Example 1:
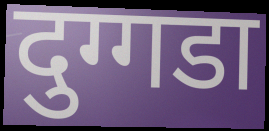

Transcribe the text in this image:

दुग्गडा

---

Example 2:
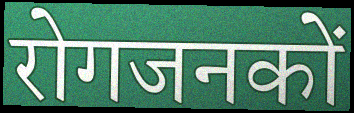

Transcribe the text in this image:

रोगजनकों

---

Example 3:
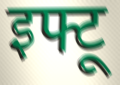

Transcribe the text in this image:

इफ्टू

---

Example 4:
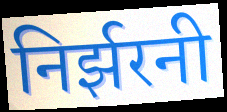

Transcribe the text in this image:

निर्झरनी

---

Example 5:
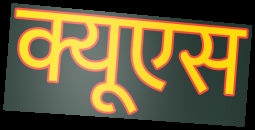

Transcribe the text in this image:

क्यूएस